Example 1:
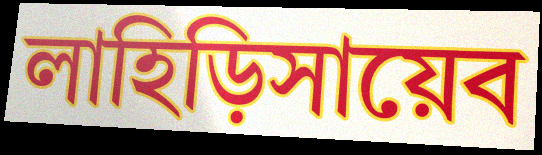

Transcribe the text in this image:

লাহিড়িসায়েব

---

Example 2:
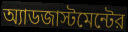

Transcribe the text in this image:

অ্যাডজাস্টমেন্টের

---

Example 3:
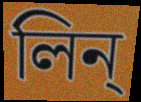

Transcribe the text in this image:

লিন্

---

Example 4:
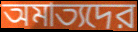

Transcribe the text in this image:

অমাত্যদের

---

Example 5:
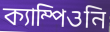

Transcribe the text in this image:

ক্যাম্পিওনি